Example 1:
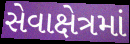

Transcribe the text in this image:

સેવાક્ષેત્રમાં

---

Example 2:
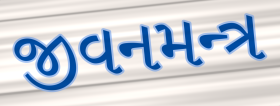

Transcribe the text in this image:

જીવનમન્ત્ર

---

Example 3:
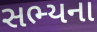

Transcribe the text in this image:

સભ્યના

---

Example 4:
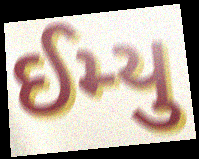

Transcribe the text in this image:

ઈમ્યુ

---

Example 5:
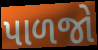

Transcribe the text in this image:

પાળજો